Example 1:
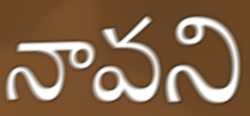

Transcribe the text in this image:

నావని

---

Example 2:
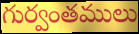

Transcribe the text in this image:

గుర్వంతములు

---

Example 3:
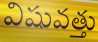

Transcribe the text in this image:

విషువత్తు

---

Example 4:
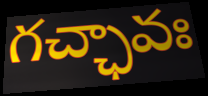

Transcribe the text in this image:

గచ్ఛావః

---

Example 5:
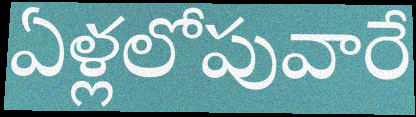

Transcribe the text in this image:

ఏళ్లలోపువారే